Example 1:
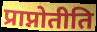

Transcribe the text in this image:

प्राप्नोतीति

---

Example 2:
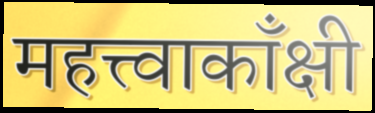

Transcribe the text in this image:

महत्त्वाकाँक्षी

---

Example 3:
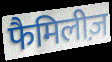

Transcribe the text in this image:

फैमिलीज़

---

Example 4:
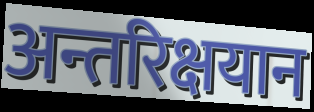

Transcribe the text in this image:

अन्तरिक्षयान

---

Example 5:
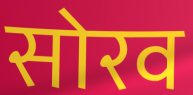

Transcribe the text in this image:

सोरव